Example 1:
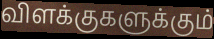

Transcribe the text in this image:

விளக்குகளுக்கும்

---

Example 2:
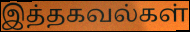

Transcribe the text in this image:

இத்தகவல்கள்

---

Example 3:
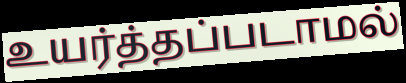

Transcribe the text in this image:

உயர்த்தப்படாமல்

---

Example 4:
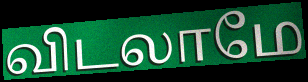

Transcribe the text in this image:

விடலாமே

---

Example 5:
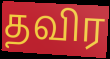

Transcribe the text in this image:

தவிர